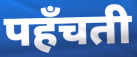
पहँचती